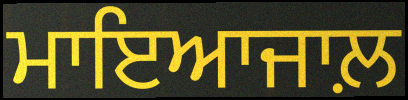
ਮਾਇਆਜਾਲ਼